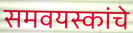
समवयस्कांचे